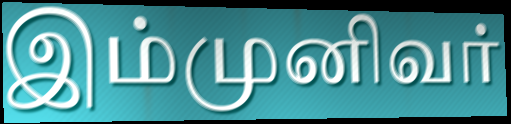
இம்முனிவர்